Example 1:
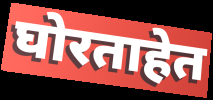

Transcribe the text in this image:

घोरताहेत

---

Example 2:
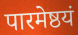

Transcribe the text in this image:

पारमेष्ठयं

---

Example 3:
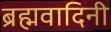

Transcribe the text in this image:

ब्रह्मवादिनी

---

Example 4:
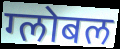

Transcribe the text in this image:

ग्लोबल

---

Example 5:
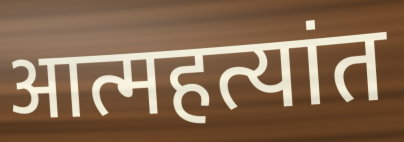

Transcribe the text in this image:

आत्महत्यांत